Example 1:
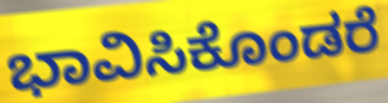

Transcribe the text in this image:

ಭಾವಿಸಿಕೊಂಡರೆ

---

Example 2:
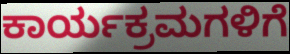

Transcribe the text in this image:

ಕಾರ್ಯಕ್ರಮಗಳಿಗೆ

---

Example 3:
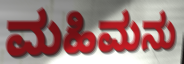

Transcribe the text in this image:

ಮಹಿಮನು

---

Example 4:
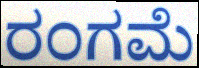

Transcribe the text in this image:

ರಂಗಮೆ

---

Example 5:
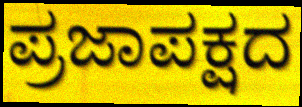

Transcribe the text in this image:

ಪ್ರಜಾಪಕ್ಷದ